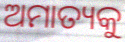
ଅମାତ୍ୟକୁ